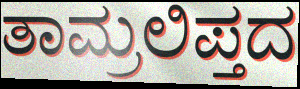
ತಾಮ್ರಲಿಪ್ತದ